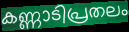
കണ്ണാടിപ്രതലം